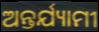
ଅନ୍ତର୍ଯ୍ୟାମୀ